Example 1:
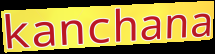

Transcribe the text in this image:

kanchana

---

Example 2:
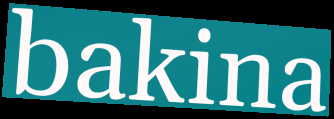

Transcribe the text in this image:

bakina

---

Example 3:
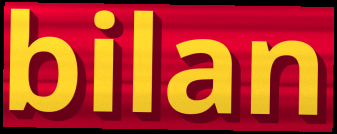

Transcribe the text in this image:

bilan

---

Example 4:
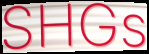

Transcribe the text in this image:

SHGs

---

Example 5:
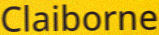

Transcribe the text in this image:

Claiborne